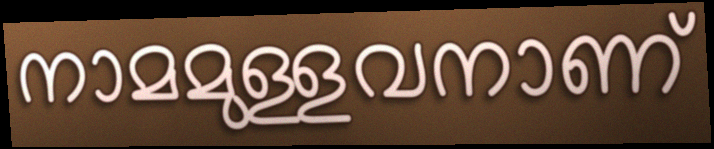
നാമമുള്ളവനാണ്